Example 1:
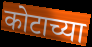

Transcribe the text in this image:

कोटाच्या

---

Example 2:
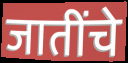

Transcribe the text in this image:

जातींचे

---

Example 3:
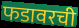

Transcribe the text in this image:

फडावरची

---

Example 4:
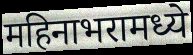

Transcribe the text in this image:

महिनाभरामध्ये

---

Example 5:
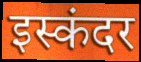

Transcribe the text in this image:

इस्कंदर